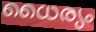
ധൈര്യം